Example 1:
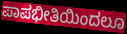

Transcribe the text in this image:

ಪಾಪಭೀತಿಯಿಂದಲೂ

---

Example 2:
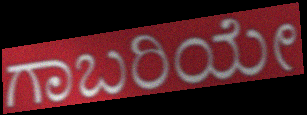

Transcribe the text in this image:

ಗಾಬರಿಯೇ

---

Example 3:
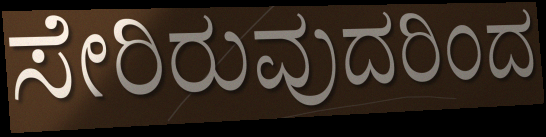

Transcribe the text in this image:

ಸೇರಿರುವುದರಿಂದ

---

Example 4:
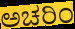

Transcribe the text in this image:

ಅಚರಿಂ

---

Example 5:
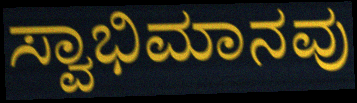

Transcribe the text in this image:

ಸ್ವಾಭಿಮಾನವು